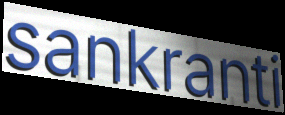
sankranti